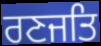
ਰਣਜਤਿ